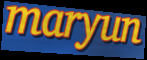
maryun